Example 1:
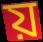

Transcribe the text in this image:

য়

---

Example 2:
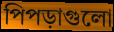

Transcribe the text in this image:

পিপড়াগুলো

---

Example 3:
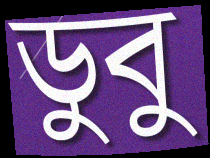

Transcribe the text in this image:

ডুবু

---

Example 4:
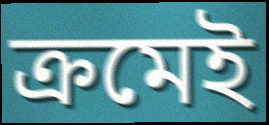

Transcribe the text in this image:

ক্রমেই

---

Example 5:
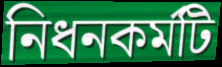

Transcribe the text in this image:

নিধনকর্মটি